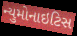
ન્યુમોનાઇટિસ